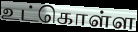
உட்கொள்ள